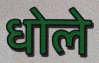
धोले